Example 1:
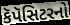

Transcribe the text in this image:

કૅપૅસિટરનો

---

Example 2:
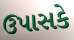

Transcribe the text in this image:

ઉપાસકે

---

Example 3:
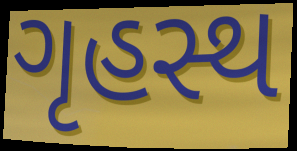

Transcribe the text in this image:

ગૃહસ્થ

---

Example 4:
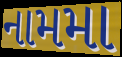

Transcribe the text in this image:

નામમા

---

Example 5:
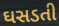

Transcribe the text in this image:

ઘસડતી